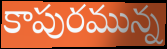
కాపురమున్న